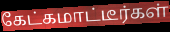
கேட்கமாட்டீர்கள்